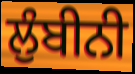
ਲੁੰਬੀਨੀ